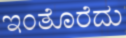
ಇಂತೊರೆದು